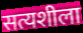
सत्यशीला